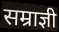
सम्राज्ञी